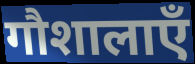
गौशालाएँ